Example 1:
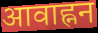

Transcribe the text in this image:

आवाह्नन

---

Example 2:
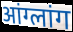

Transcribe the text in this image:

आंग्लांग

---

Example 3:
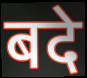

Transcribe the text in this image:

बदे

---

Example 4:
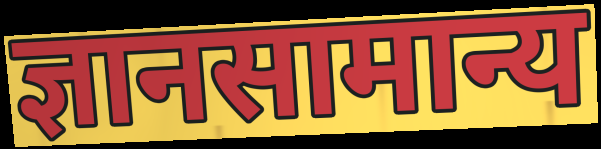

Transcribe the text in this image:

ज्ञानसामान्य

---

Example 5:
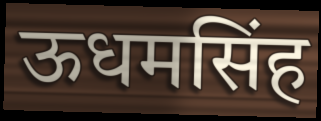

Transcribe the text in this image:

ऊधमसिंह